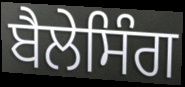
ਬੈਲੇਸਿੰਗ